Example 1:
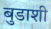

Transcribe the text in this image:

बुडाशी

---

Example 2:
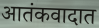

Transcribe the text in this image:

आतंकवादात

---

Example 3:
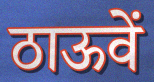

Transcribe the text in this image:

ठाऊवें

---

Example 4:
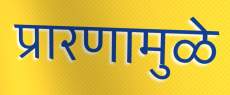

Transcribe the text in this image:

प्रारणामुळे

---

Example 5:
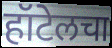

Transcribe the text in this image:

हॉटेलचा